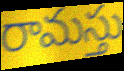
రామస్తు